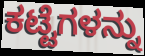
ಕಟ್ಟೆಗಳನ್ನು